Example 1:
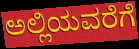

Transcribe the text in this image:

ಅಲ್ಲಿಯವರೆಗೆ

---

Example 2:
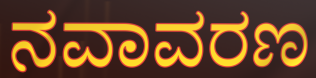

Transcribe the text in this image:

ನವಾವರಣ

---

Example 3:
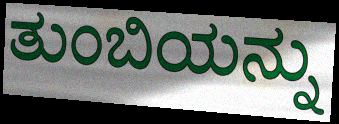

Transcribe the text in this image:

ತುಂಬಿಯನ್ನು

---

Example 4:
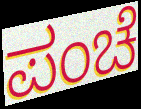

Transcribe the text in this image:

ಪಂಚೆ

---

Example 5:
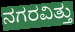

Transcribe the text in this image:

ನಗರವಿತ್ತು